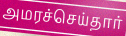
அமரச்செய்தார்